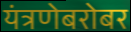
यंत्रणेबरोबर